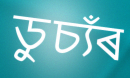
ডুচ্যঁৰ